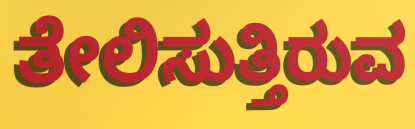
ತೇಲಿಸುತ್ತಿರುವ